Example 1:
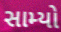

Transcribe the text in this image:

સામ્યો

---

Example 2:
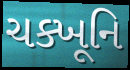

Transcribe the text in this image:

ચક્ખૂનિ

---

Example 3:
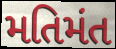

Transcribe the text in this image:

મતિમંત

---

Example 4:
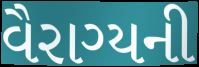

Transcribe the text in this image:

વૈરાગ્યની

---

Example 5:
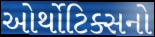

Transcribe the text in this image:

ઓર્થોટિક્સનો